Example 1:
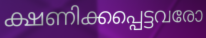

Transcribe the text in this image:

ക്ഷണിക്കപ്പെട്ടവരോ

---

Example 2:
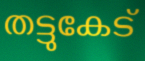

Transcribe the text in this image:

തട്ടുകേട്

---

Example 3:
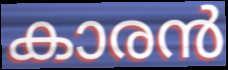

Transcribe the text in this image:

കാരൻ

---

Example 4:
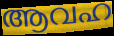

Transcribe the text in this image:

ആവഹ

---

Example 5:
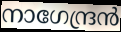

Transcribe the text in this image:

നാഗേന്ദ്രൻ